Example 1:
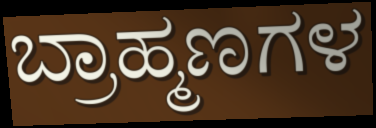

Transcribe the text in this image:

ಬ್ರಾಹ್ಮಣಗಳ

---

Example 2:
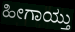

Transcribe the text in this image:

ಹೀಗಾಯ್ತು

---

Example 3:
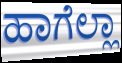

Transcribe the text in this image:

ಹಾಗೆಲ್ಲಾ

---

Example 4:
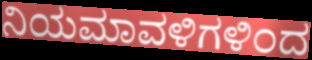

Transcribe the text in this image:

ನಿಯಮಾವಳಿಗಳಿಂದ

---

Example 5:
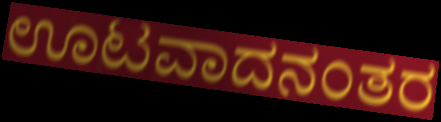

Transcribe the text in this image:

ಊಟವಾದನಂತರ